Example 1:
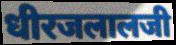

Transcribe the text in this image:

धीरजलालजी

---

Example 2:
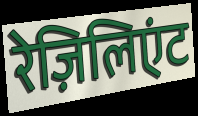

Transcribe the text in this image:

रेज़िलिएंट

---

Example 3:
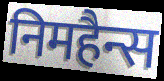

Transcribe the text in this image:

निमहैन्स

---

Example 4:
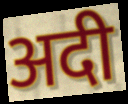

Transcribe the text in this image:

अदी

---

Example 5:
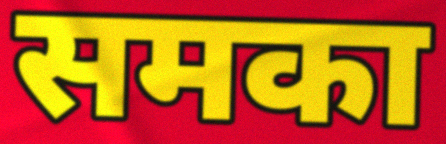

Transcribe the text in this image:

समका